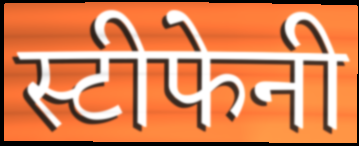
स्टीफेनी